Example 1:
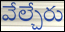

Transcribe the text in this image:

వేల్చేరు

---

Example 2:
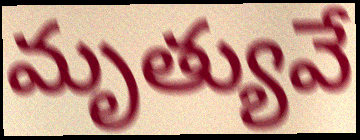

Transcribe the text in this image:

మృత్యువే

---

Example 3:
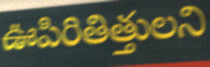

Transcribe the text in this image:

ఊపిరితిత్తులని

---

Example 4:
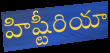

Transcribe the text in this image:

హిష్టీరియా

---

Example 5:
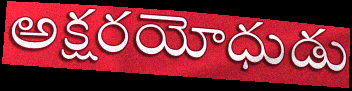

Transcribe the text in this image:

అక్షరయోధుడు